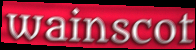
wainscot